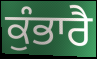
ਕੁੰਭਾਰੈ